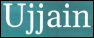
Ujjain